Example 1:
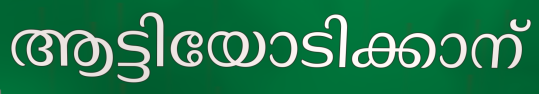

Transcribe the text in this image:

ആട്ടിയോടിക്കാന്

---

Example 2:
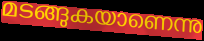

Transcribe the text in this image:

മടങ്ങുകയാണെന്നു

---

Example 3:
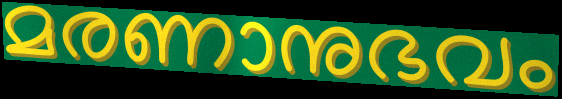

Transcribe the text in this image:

മരണാനുഭവം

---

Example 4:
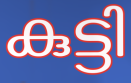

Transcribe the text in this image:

കുട്ടി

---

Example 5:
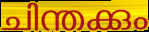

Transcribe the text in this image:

ചിന്തക്കും